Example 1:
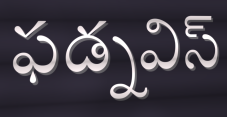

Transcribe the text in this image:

ఫడ్నవిస్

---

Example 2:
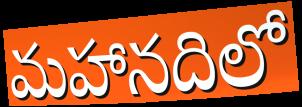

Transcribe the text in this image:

మహానదిలో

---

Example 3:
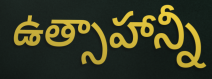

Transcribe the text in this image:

ఉత్సాహాన్నీ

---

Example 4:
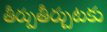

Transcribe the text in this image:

తీర్పుతీర్చుటకు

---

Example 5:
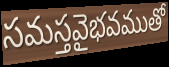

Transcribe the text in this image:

సమస్తవైభవముతో